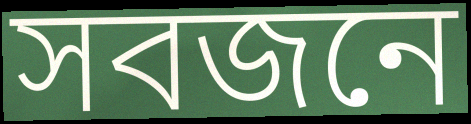
সবজনে